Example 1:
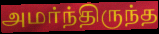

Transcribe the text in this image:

அமர்ந்திருந்த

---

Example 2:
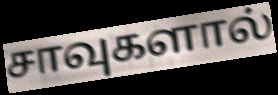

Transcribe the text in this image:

சாவுகளால்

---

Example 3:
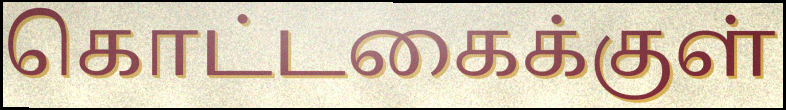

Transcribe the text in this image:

கொட்டகைக்குள்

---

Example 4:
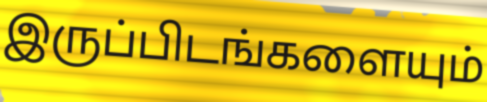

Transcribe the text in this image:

இருப்பிடங்களையும்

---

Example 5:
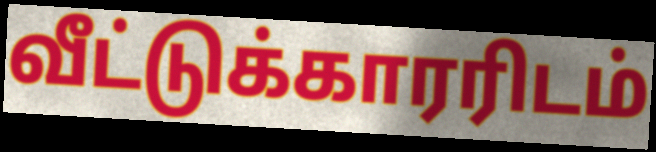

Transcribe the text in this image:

வீட்டுக்காரரிடம்